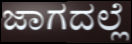
ಜಾಗದಲ್ಲೆ